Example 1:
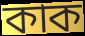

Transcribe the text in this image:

কাক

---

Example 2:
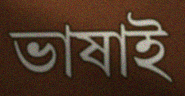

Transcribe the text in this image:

ভাষাই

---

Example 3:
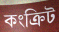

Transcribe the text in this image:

কংক্ৰিট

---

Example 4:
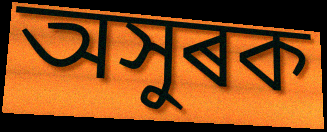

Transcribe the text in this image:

অসুৰক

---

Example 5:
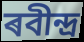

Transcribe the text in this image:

ৰবীন্দ্ৰ